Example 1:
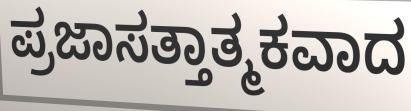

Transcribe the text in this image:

ಪ್ರಜಾಸತ್ತಾತ್ಮಕವಾದ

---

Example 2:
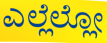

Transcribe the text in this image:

ಎಲ್ಲೆಲ್ಲೋ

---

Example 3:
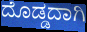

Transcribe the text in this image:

ದೊಡ್ಡದಾಗಿ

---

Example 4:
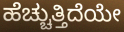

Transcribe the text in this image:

ಹೆಚ್ಚುತ್ತಿದೆಯೇ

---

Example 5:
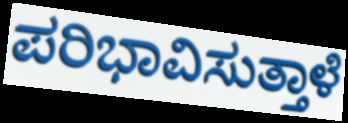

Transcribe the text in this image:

ಪರಿಭಾವಿಸುತ್ತಾಳೆ